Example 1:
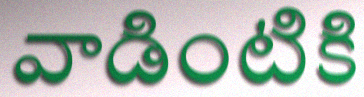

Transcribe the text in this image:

వాడింటికి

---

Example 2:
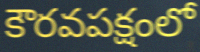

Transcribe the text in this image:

కౌరవపక్షంలో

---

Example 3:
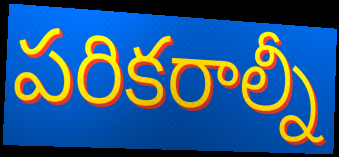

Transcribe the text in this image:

పరికరాల్నీ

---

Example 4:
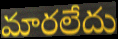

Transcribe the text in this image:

మారలేదు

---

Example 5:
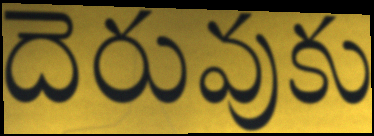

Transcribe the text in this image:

దెరువుకు